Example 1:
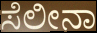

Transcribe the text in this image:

ಸೆಲೀನಾ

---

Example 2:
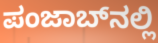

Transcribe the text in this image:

ಪಂಜಾಬ್‌ನಲ್ಲಿ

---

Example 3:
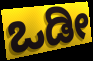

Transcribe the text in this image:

ಒಡೀ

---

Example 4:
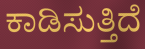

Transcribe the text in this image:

ಕಾಡಿಸುತ್ತಿದೆ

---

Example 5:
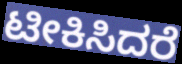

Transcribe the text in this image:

ಟೀಕಿಸಿದರೆ